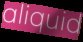
aliquid